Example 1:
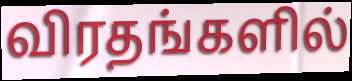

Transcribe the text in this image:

விரதங்களில்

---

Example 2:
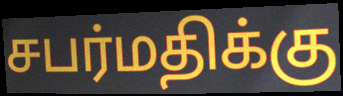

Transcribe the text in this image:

சபர்மதிக்கு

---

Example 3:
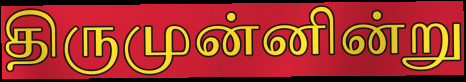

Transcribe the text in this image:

திருமுன்னின்று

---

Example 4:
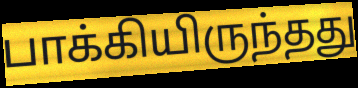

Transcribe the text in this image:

பாக்கியிருந்தது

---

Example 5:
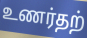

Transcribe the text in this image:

உணர்தற்